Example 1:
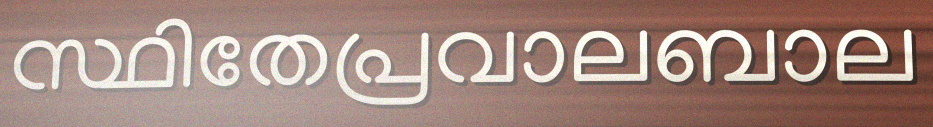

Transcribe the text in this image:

സ്ഥിതേപ്രവാലബാല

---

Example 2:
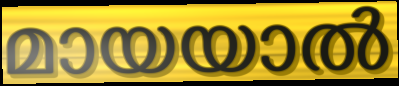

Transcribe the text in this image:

മായയാൽ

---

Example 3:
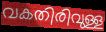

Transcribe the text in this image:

വകതിരിവുള്ള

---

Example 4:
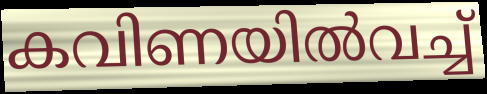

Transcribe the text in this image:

കവിണയിൽവച്ച്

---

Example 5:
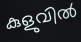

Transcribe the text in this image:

കുളുവിൽ